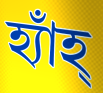
হ্যাঁহ্